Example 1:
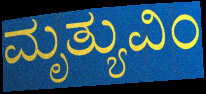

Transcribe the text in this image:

ಮೃತ್ಯುವಿಂ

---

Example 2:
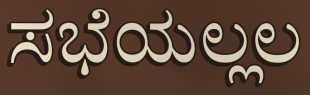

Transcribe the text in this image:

ಸಭೆಯಲ್ಲಲ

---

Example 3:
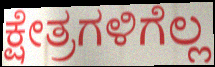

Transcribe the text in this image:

ಕ್ಷೇತ್ರಗಳಿಗೆಲ್ಲ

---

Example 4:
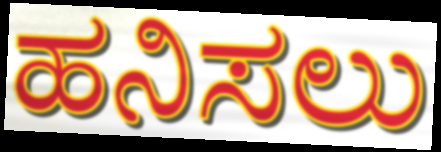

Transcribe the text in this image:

ಹನಿಸಲು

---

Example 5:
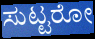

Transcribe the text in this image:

ಸುಟ್ಟರೋ